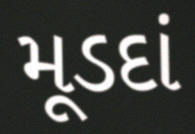
મૂડદાં